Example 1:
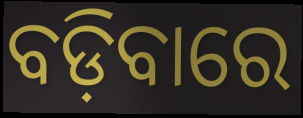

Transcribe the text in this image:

ବଡ଼ିବାରେ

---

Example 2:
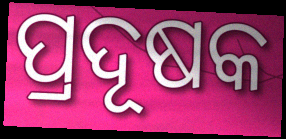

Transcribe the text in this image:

ପ୍ରଦୂଷକ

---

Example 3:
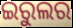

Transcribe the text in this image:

ଇରୁଲର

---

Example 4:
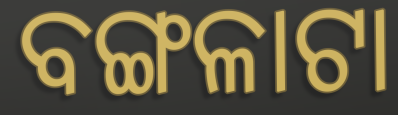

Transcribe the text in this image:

ବଙ୍ଗଳାଟା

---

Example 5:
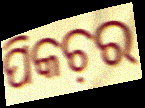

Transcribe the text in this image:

ପିକଚ଼ର